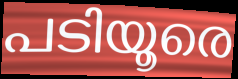
പടിയൂരെ